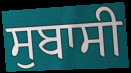
ਸੁਬਾਸੀ